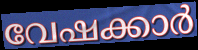
വേഷക്കാർ